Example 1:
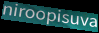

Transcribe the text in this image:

niroopisuva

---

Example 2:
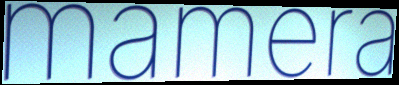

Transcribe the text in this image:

mamera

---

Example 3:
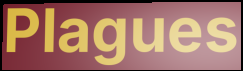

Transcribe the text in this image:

Plagues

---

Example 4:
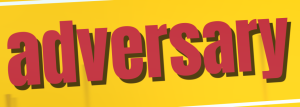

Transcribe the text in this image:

adversary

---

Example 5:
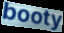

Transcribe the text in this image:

booty